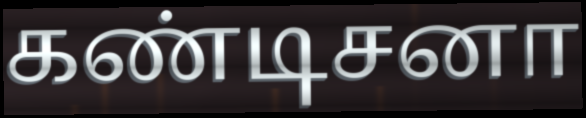
கண்டிசனா